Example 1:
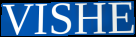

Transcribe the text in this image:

VISHE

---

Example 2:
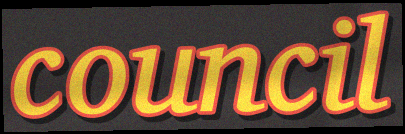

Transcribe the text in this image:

council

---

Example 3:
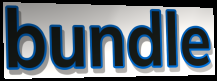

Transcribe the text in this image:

bundle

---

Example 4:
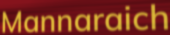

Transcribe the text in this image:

Mannaraich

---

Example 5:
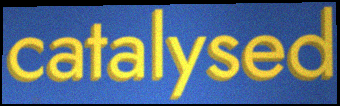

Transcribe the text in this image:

catalysed